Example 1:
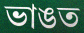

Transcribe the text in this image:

ভাঙত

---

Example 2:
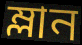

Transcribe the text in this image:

ম্লান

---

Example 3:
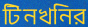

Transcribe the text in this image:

টিনখনির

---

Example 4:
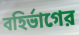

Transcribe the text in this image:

বহির্ভাগের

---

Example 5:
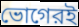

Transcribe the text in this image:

ভোগেরই